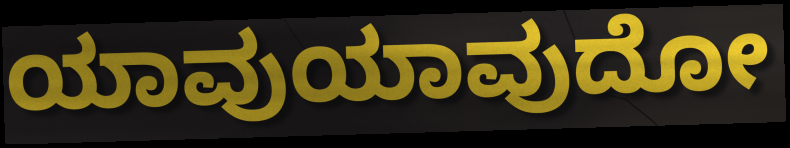
ಯಾವುಯಾವುದೋ